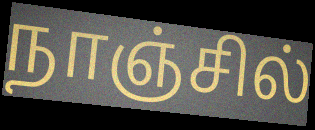
நாஞ்சில்